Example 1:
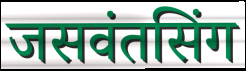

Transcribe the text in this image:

जसवंतसिंग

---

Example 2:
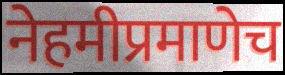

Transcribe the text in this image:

नेहमीप्रमाणेच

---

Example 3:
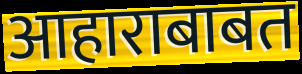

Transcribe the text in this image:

आहाराबाबत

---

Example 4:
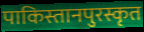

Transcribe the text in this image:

पाकिस्तानपुरस्कृत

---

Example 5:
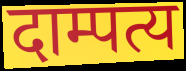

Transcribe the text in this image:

दाम्पत्य